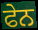
ਫੇਨ